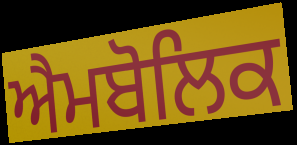
ਐਮਬੋਲਿਕ